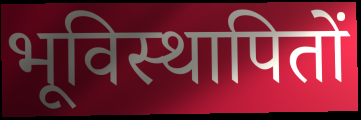
भूविस्थापितों